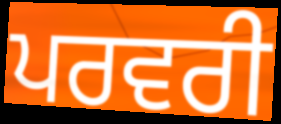
ਪਰਵਰੀ